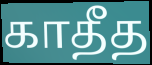
காதீத